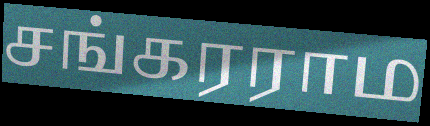
சங்கரராம